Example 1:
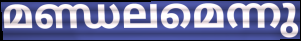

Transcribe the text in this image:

മണ്ഡലമെന്നു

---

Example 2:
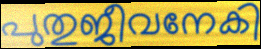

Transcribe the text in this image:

പുതുജീവനേകി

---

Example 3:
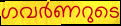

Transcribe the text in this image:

ഗവർണറുടെ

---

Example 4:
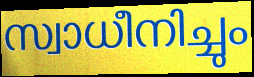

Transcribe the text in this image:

സ്വാധീനിച്ചും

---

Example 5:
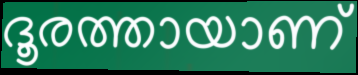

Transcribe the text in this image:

ദൂരത്തായാണ്